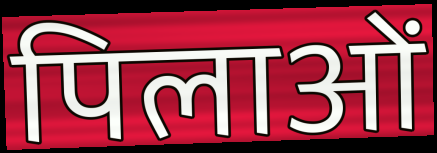
पिलाओं